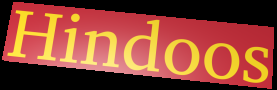
Hindoos